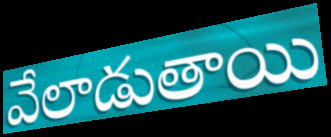
వేలాడుతాయి